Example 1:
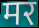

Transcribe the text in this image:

मर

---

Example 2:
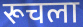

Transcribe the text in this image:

रूचला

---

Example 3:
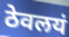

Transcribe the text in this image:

ठेवलयं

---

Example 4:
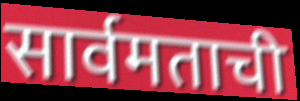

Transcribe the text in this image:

सार्वमताची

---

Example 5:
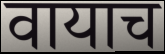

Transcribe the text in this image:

वायाच